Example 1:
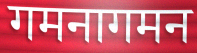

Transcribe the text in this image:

गमनागमन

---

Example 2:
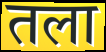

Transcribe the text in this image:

तला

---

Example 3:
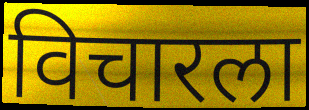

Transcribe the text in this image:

विचारला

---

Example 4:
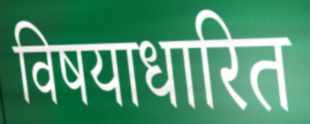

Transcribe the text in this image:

विषयाधारित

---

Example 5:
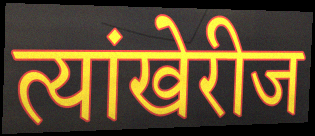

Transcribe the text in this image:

त्यांखेरीज